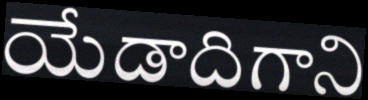
యేడాదిగాని